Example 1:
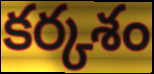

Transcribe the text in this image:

కర్కశం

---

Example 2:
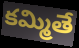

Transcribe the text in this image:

కమ్మితే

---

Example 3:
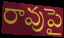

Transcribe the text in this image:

రావుపై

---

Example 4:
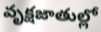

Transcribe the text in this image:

వృక్షజాతుల్లో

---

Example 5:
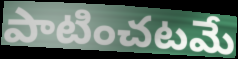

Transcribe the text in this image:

పాటించటమే